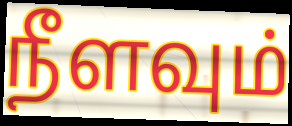
நீளவும்